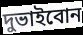
দুভাইবোন